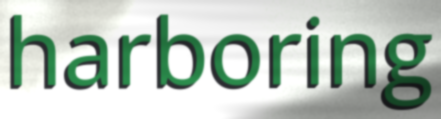
harboring